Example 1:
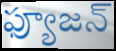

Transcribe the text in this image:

ఫ్యూజన్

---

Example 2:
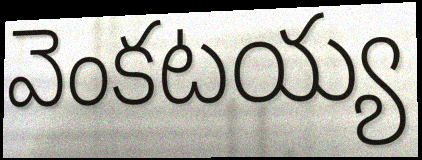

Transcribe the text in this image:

వెంకటయ్య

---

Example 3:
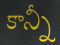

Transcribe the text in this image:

కాన్నీ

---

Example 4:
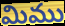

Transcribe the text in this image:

మిము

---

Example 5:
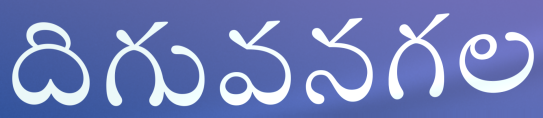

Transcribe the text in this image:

దిగువనగల